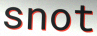
snot